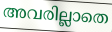
അവരില്ലാതെ